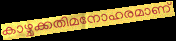
കാഴ്ചക്കതിമനോഹരമാണ്